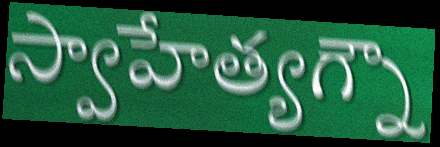
స్వాహేత్యగ్నౌ